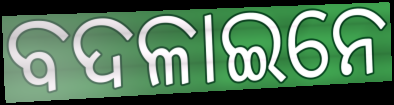
ବଦଳାଇନେ